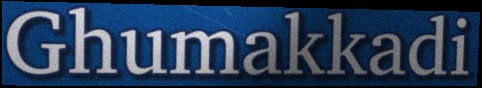
Ghumakkadi